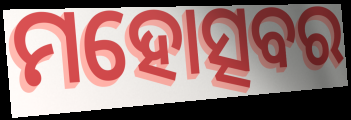
ମହୋତ୍ସବର